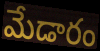
మేడారం